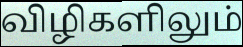
விழிகளிலும்